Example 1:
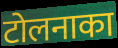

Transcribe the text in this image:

टोलनाका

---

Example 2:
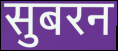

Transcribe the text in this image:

सुबरन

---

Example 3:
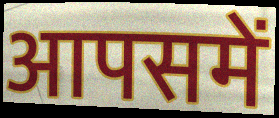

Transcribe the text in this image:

आपसमें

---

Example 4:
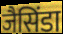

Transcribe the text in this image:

जैसिंडा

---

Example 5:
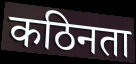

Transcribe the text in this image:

कठिनता